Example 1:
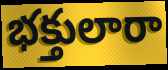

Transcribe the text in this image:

భక్తులారా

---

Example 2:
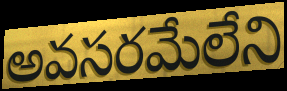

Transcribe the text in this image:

అవసరమేలేని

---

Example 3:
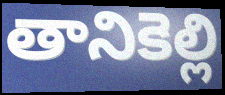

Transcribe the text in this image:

తానికెల్లి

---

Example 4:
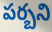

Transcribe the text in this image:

పర్బని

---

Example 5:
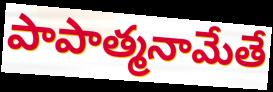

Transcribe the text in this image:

పాపాత్మనామేతే